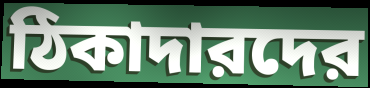
ঠিকাদারদের